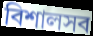
বিশালসব